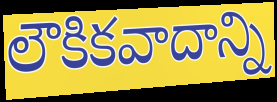
లౌకికవాదాన్ని